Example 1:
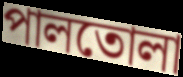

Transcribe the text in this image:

পালতোলা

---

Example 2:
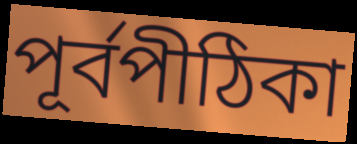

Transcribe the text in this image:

পূর্বপীঠিকা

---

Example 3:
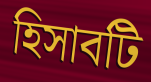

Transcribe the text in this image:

হিসাবটি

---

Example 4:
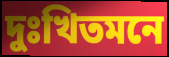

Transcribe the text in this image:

দুঃখিতমনে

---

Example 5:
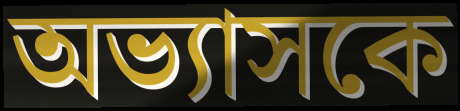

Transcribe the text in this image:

অভ্যাসকে